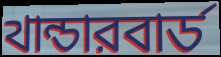
থান্ডারবার্ড